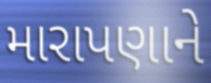
મારાપણાને